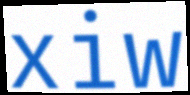
xiw